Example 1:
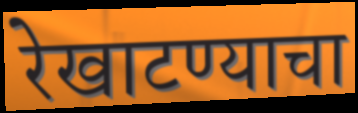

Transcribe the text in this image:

रेखाटण्याचा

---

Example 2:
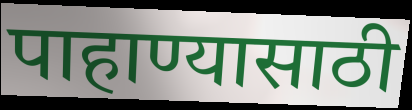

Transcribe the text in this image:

पाहाण्यासाठी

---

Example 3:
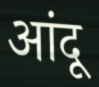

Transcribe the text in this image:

आंदू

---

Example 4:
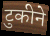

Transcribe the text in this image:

टुकीने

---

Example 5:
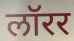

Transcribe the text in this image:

लॉरर